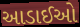
આડાઈઓ